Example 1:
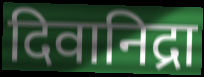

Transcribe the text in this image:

दिवानिद्रा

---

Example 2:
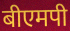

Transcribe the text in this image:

बीएमपी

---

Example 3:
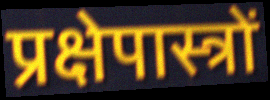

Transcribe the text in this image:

प्रक्षेपास्त्रों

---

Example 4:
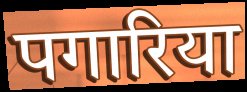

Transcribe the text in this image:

पगारिया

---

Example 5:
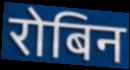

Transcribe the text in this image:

रोबिन